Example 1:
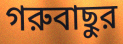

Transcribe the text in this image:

গরুবাছুর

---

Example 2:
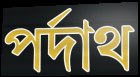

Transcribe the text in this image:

পর্দাথ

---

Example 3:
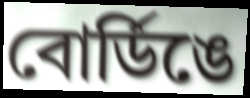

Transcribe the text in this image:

বোর্ডিঙে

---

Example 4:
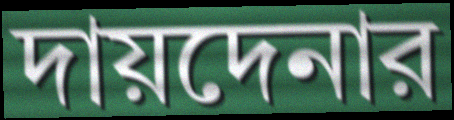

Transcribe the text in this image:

দায়দেনার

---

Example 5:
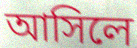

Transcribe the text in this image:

আসিলে